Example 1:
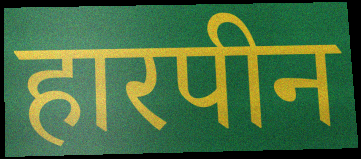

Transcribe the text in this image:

हारपीन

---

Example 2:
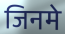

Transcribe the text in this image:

जिनमे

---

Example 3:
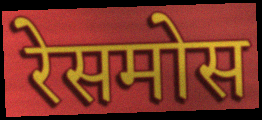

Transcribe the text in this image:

रेसमोस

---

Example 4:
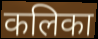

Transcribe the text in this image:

कलिका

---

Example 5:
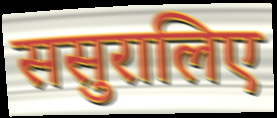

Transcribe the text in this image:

ससुरालिए